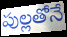
పుల్లతోనే